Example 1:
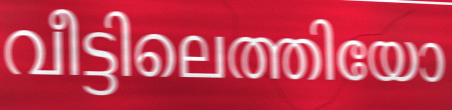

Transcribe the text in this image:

വീട്ടിലെത്തിയോ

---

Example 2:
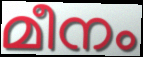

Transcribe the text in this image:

മീനം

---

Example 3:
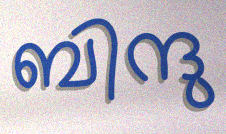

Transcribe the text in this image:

ബിന്ദു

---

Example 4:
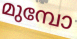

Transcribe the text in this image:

മുമ്പോ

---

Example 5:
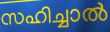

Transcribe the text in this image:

സഹിച്ചാൽ